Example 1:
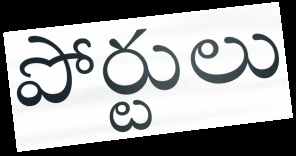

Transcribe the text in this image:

పోర్టులు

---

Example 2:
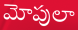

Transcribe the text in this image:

మోపులా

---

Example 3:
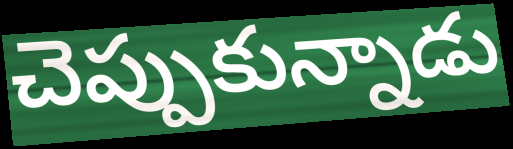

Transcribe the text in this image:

చెప్పుకున్నాడు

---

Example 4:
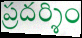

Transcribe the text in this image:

ప్రదర్శిం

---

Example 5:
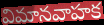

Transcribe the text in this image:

విమానవాహక